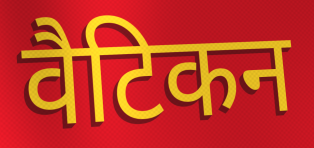
वैटिकन